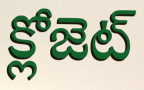
క్లోజెట్